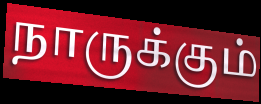
நாருக்கும்